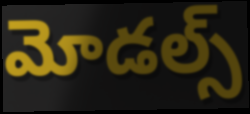
మోడల్స్